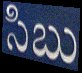
సిబు